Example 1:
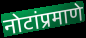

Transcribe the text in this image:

नोटांप्रमाणे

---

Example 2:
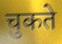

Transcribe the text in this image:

चुकते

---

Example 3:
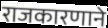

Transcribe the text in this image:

राजकारणाने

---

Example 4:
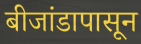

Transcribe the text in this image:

बीजांडापासून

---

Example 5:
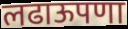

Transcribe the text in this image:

लढाऊपणा